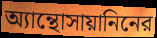
অ্যান্থোসায়ানিনের